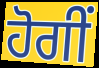
ਹੋਗੀਂ